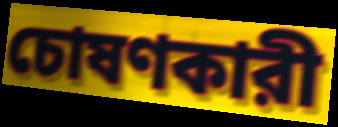
চোষণকারী